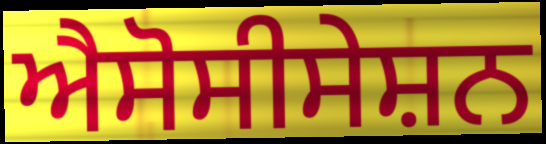
ਐਸੋਸੀਸੇਸ਼ਨ